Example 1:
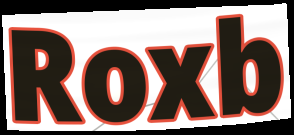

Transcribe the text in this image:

Roxb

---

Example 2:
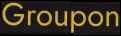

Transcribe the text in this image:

Groupon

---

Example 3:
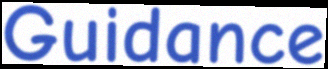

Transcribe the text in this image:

Guidance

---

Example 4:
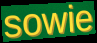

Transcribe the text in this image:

sowie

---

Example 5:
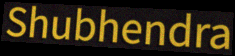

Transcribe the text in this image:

Shubhendra